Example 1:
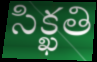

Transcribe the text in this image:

సిక్ఖతి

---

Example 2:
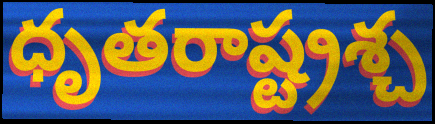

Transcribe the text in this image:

ధృతరాష్ట్రశ్చ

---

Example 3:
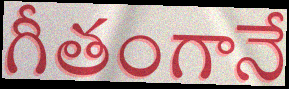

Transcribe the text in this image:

గీతంగానే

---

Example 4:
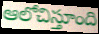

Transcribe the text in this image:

ఆలోచిస్తూంది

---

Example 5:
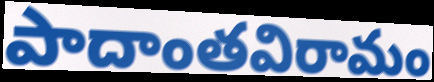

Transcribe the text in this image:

పాదాంతవిరామం